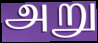
அறு